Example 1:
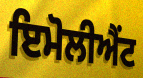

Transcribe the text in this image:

ਇਮੋਲੀਐਂਟ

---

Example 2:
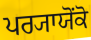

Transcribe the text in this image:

ਪਰ੍ਯਾਯੋਂਕੋ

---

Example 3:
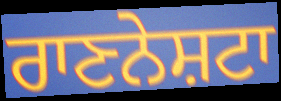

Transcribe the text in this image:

ਰਾਣਨੇਸ਼ਟਾ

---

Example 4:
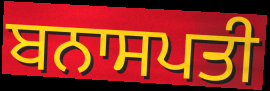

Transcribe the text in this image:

ਬਨਾਸਪਤੀ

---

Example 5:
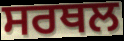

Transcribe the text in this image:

ਸਰਥਲ